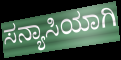
ಸನ್ಯಾಸಿಯಾಗಿ